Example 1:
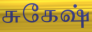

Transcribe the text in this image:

சுகேஷ்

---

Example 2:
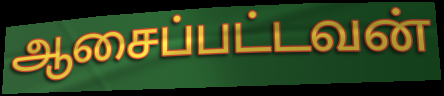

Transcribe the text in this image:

ஆசைப்பட்டவன்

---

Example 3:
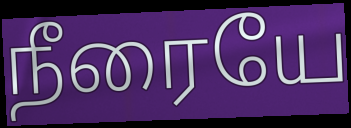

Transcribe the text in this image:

நீரையே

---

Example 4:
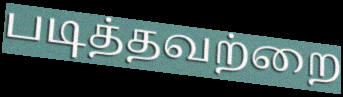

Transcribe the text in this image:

படித்தவற்றை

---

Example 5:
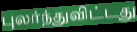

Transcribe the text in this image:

புலர்ந்துவிட்டது